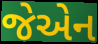
જેએન